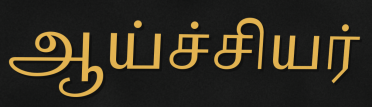
ஆய்ச்சியர்